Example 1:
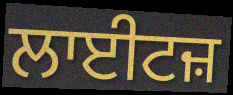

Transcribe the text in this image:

ਲਾਈਟਜ਼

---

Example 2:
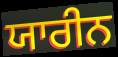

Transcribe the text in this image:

ਯਾਰੀਨ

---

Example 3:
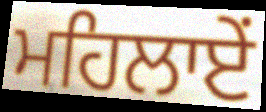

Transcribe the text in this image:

ਮਹਿਲਾਏਂ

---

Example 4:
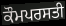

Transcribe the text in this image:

ਕੌਮਪਰਸਤੀ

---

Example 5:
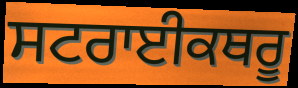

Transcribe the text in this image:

ਸਟਰਾਈਕਥਰੂ